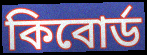
কিবোর্ড